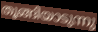
തൂങ്ങിയാടുന്നു